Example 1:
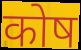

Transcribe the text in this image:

कोष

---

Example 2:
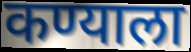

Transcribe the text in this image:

कण्याला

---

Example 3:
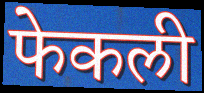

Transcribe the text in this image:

फेकली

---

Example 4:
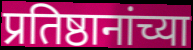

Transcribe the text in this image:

प्रतिष्ठानांच्या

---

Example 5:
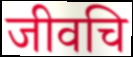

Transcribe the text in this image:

जीवचि